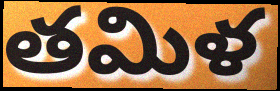
తమిళ